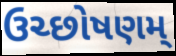
ઉચ્છોષણમ્